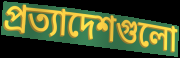
প্রত্যাদেশগুলো